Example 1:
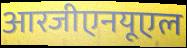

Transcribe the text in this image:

आरजीएनयूएल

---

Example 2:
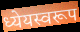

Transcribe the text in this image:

ध्येयस्वरूप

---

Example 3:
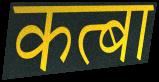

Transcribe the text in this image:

कत्बा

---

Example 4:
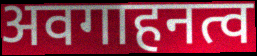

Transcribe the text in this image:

अवगाहनत्व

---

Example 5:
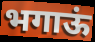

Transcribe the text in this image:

भगाऊं